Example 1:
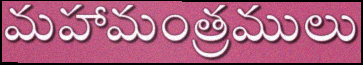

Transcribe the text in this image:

మహామంత్రములు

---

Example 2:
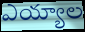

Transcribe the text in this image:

ఎయ్యాల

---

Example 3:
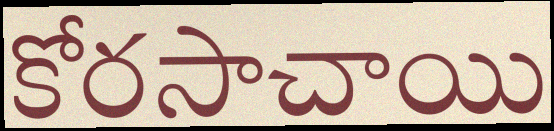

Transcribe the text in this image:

కోరసాచాయి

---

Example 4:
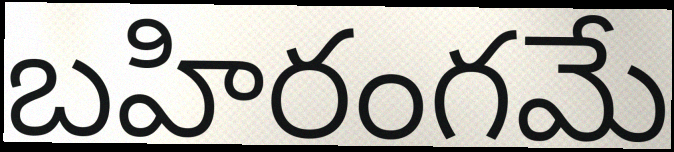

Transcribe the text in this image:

బహిరంగమే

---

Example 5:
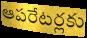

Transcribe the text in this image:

ఆపరేటర్లకు